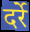
दर्रे